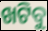
ଖଟିବୁ